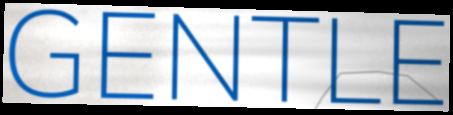
GENTLE